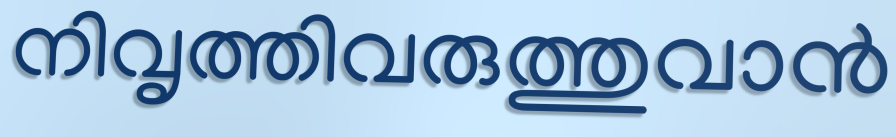
നിവൃത്തിവരുത്തുവാൻ